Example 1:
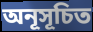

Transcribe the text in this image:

অনূসূচিত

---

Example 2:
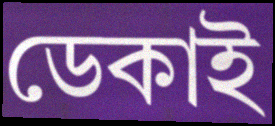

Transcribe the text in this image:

ডেকাই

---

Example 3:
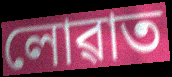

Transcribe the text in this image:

লোৱাত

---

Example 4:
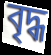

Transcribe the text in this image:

বৃদ্ধ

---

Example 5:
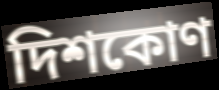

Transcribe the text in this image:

দিশকোণ